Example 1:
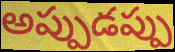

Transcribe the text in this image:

అప్పుడప్పు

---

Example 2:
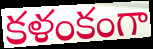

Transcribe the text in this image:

కళంకంగా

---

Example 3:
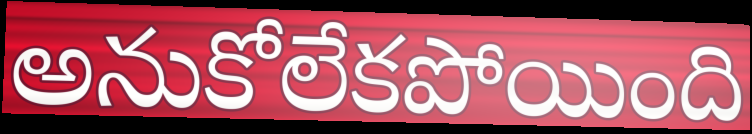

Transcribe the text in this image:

అనుకోలేకపోయింది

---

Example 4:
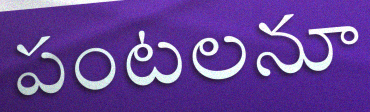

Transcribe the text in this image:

పంటలనూ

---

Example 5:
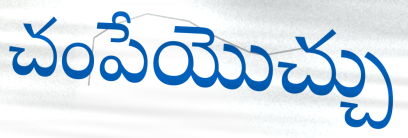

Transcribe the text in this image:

చంపేయొచ్చు